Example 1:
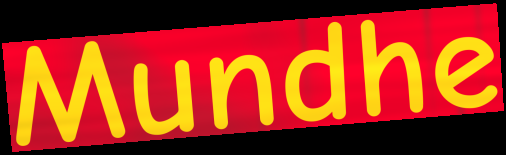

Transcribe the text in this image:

Mundhe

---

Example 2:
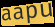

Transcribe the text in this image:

aapu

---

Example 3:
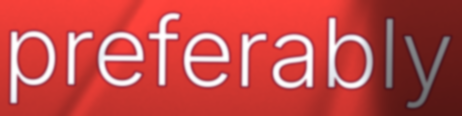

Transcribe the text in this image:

preferably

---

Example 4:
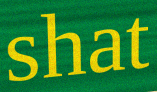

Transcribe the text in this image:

shat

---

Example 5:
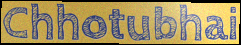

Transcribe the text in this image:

Chhotubhai